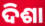
ଦିଶା